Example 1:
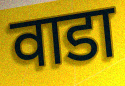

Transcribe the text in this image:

वाडा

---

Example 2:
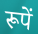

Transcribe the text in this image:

रूपें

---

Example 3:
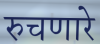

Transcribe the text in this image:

रुचणारे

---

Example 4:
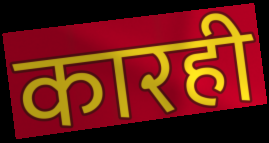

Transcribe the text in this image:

कारही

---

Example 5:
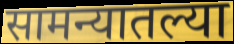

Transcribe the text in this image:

सामन्यातल्या